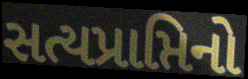
સત્યપ્રાપ્તિનો